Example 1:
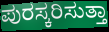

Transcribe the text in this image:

ಪುರಸ್ಕರಿಸುತ್ತಾ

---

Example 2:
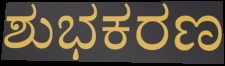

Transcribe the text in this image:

ಶುಭಕರಣ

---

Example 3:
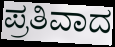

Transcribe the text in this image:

ಪ್ರತಿವಾದ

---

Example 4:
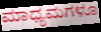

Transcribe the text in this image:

ಮಾಧ್ಯಮಗಳೂ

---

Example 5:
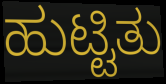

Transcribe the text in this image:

ಹುಟ್ಟಿತು